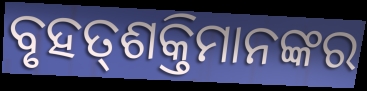
ବୃହତ୍‌ଶକ୍ତିମାନଙ୍କର